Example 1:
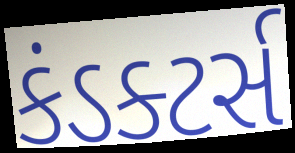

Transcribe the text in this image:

કંડક્ટર્સ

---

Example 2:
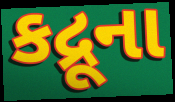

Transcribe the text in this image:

કદ્રૂના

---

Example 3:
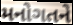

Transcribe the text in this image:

મનોગતને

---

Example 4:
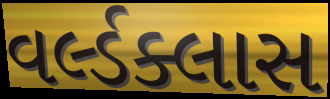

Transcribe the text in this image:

વર્લ્ડક્લાસ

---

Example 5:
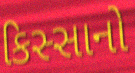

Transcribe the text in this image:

કિસ્સાનો